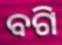
ବଗି